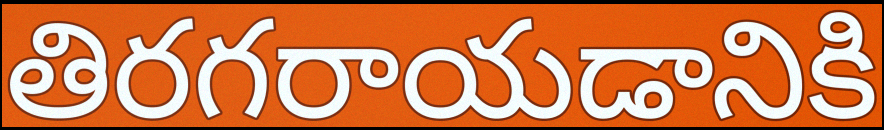
తిరగరాయడానికి